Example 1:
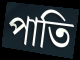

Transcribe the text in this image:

পাতি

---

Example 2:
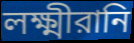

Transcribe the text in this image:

লক্ষ্মীরানি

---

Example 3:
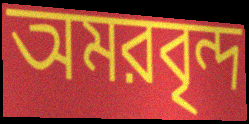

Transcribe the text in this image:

অমরবৃন্দ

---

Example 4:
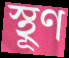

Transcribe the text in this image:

স্থূণ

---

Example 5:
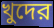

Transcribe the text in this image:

খুদের